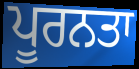
ਪੂਰਨਤਾ